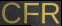
CFR